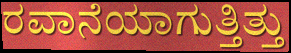
ರವಾನೆಯಾಗುತ್ತಿತ್ತು